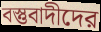
বস্তুবাদীদের